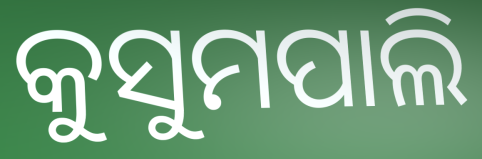
କୁସୁମପାଲି